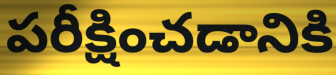
పరీక్షించడానికి